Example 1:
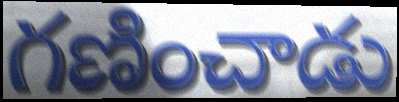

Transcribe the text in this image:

గణించాడు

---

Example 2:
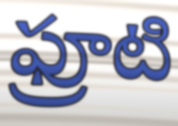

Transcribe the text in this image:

ఫ్రూటి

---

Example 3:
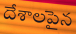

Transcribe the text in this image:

దేశాలపైన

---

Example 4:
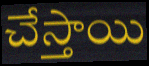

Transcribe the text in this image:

చేస్తాయి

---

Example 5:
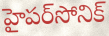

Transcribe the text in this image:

హైపర్‌సోనిక్